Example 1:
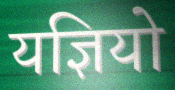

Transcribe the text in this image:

यज्ञियो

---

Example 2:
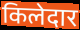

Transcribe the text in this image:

किलेदार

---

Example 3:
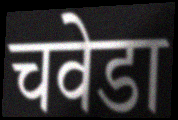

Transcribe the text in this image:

चवेडा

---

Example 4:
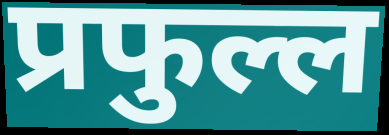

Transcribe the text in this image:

प्रफुल्ल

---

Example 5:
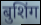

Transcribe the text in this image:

बुशिंग